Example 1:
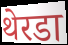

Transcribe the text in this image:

थेरडा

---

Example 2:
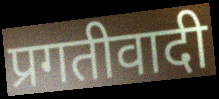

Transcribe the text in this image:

प्रगतीवादी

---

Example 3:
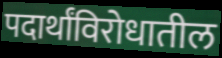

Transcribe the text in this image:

पदार्थांविरोधातील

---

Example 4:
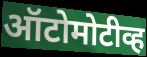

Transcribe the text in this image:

ऑटोमोटीव्ह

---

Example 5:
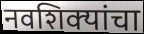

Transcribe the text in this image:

नवशिक्यांचा